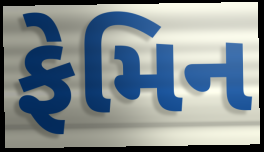
ફેમિન